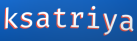
ksatriya